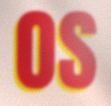
OS